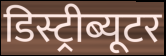
डिस्ट्रीब्यूटर